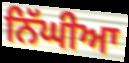
ਨਿੱਘੀਆ